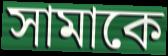
সামাকে